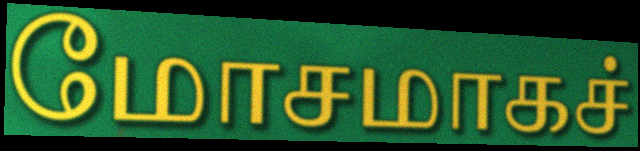
மோசமாகச்